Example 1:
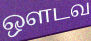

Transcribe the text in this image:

ஔடவ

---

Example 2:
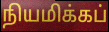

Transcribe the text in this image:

நியமிக்கப்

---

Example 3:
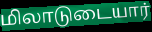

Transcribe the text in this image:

மிலாடுடையார்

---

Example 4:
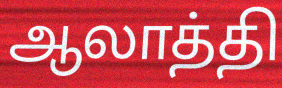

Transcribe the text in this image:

ஆலாத்தி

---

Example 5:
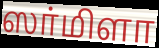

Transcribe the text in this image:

ஸர்மிளா